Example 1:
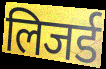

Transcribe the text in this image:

लिजर्ड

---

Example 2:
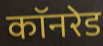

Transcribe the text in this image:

कॉनरेड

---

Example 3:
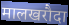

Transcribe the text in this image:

मालखरौदा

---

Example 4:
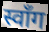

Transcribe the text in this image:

स्वाँग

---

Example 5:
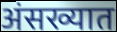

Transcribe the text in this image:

अंसख्यात